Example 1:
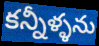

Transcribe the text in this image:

కన్నీళ్ళను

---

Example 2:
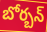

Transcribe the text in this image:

బోర్బన్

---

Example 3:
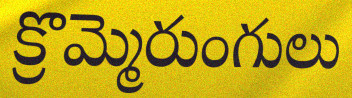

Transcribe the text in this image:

క్రొమ్మెరుంగులు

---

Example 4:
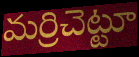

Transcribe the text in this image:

మర్రిచెట్టూ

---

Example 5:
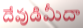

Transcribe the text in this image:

దేవుడిమీదా